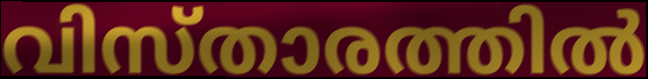
വിസ്താരത്തിൽ